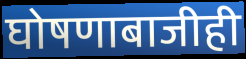
घोषणाबाजीही